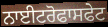
ਨਾਈਟਰੋਫਾਸਫੇਟ